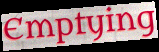
Emptying